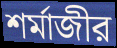
শর্মাজীর